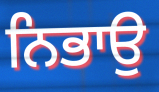
ਨਿਭਾਉ